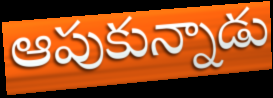
ఆపుకున్నాడు